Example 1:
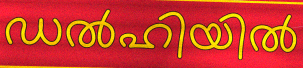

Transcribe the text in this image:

ഡൽഹിയിൽ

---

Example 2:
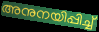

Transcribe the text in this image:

അനുനയിപ്പിച്ച്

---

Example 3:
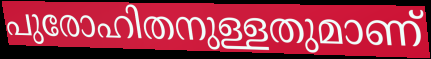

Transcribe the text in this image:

പുരോഹിതനുള്ളതുമാണ്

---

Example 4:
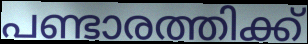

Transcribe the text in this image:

പണ്ടാരത്തിക്ക്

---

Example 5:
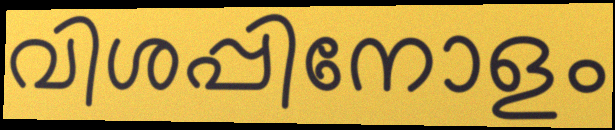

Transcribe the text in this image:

വിശപ്പിനോളം